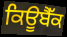
ਕਿਊਬੈੱਕ